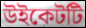
উইকেটটি